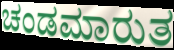
ಚಂಡಮಾರುತ